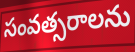
సంవత్సరాలను